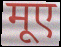
मूए